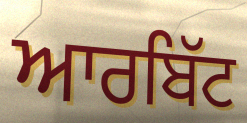
ਆਰਬਿੱਟ